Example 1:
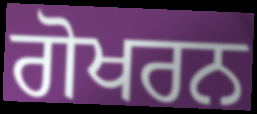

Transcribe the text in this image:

ਗੋਖਰਨ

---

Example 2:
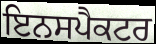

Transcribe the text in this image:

ਇਨਸਪੈਕਟਰ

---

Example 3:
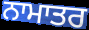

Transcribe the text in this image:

ਨਾਮਾਤਰ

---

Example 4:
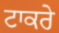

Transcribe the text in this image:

ਟਾਕਰੇ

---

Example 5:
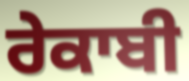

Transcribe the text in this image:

ਰੇਕਾਬੀ